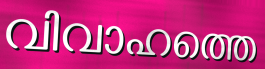
വിവാഹത്തെ